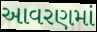
આવરણમાં